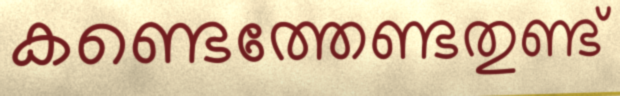
കണ്ടെത്തേണ്ടതുണ്ട്